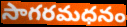
సాగరమధనం